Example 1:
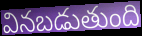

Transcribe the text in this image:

వినబడుతుంది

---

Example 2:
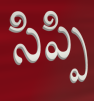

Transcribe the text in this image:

సిప్పి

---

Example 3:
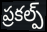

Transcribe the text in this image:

ప్రకల్ప్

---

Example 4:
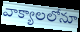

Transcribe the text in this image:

వాక్యాలలోనూ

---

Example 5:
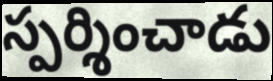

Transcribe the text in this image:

స్పర్శించాడు